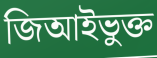
জিআইভুক্ত